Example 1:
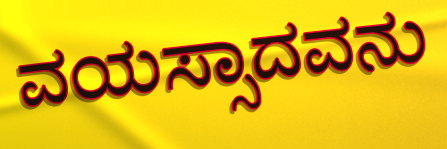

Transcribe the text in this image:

ವಯಸ್ಸಾದವನು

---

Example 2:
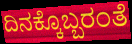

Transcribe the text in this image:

ದಿನಕ್ಕೊಬ್ಬರಂತೆ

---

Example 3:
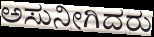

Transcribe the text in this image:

ಅಸುನೀಗಿದರು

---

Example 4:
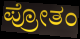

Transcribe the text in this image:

ಪ್ರೋತಂ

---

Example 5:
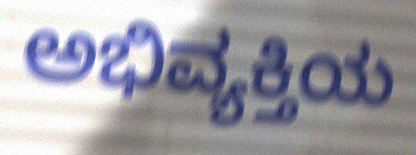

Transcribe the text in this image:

ಅಭಿವ್ಯಕ್ತಿಯ